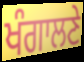
ਖੰਗਾਲਣੇ